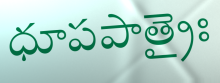
ధూపపాత్రైః